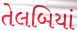
તેલબિયાં